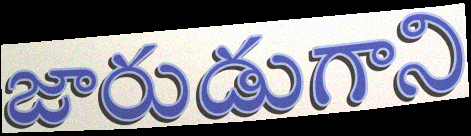
జారుడుగాని